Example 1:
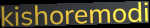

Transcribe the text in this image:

kishoremodi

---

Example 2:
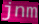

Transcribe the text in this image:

jnm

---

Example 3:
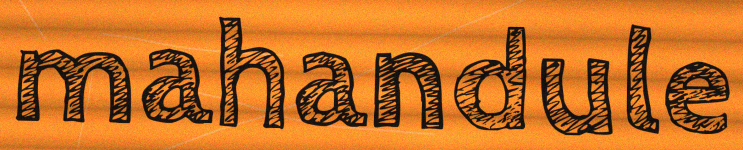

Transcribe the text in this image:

mahandule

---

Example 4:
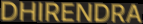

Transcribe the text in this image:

DHIRENDRA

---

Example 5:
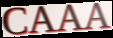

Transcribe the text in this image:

CAAA